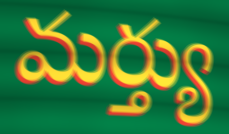
మర్త్యు